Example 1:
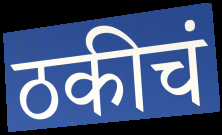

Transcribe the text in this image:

ठकीचं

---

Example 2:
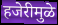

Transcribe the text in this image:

हजेरीमुळे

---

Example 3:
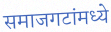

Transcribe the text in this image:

समाजगटांमध्ये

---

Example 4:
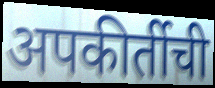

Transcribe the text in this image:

अपकीर्तीची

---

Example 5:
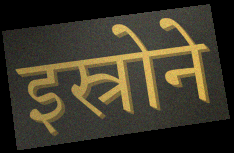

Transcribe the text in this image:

इस्रोने